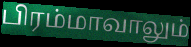
பிரம்மாவாலும்